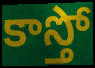
కాస్తో